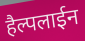
हैल्पलाईन